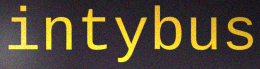
intybus